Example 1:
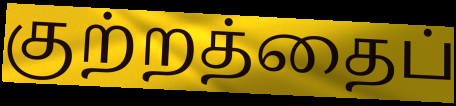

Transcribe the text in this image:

குற்றத்தைப்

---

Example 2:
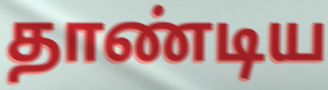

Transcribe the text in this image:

தாண்டிய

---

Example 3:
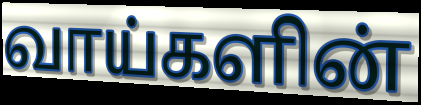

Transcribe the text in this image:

வாய்களின்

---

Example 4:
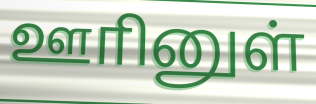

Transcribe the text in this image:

ஊரினுள்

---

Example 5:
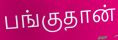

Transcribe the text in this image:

பங்குதான்